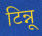
टिन्नू